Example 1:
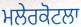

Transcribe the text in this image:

ਮਲੇਰਕੋਟਲਾ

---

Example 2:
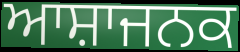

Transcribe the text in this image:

ਆਸ਼ਾਜਨਕ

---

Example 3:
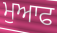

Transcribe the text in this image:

ਮੁਆਫ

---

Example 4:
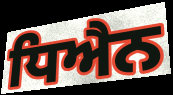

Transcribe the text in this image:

ਧਿਐਨ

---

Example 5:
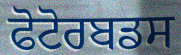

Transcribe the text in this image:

ਫੋਟੋਰਬਡਸ